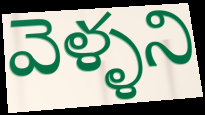
వెళ్ళని